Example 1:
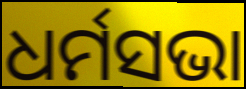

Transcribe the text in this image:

ଧର୍ମସଭା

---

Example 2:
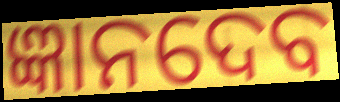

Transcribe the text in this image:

ଜ୍ଞାନଦେବ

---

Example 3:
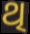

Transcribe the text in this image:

ଥି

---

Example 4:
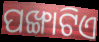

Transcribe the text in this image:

ପଙ୍ଖାଟିଏ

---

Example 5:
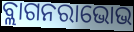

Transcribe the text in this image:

ବ୍ଲାଗନରାଭୋଭ